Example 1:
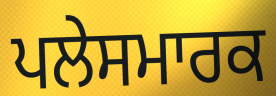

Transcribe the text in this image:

ਪਲੇਸਮਾਰਕ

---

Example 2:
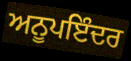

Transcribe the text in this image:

ਅਨੂਪਇੰਦਰ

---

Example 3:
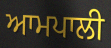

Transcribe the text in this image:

ਆਮਪਾਲੀ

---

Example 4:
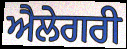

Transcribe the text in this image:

ਐਲੇਗਰੀ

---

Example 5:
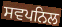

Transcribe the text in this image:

ਸਵਪਨਿਲ